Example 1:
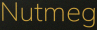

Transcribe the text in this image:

Nutmeg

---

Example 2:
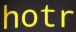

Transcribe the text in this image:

hotr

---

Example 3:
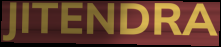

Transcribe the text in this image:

JITENDRA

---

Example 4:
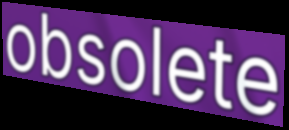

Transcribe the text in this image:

obsolete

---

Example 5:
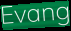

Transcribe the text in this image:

Evang